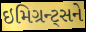
ઇમિગ્રન્ટ્સને